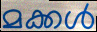
മക്കൾ